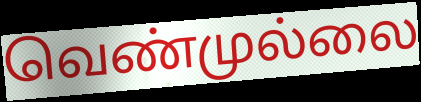
வெண்முல்லை